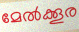
മേൽക്കൂര